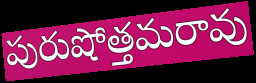
పురుషోత్తమరావు